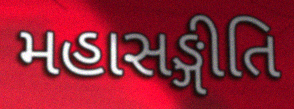
મહાસઙ્ગીતિ